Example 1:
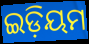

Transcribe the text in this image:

ଇଡ଼ିୟମ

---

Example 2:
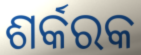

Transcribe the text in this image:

ଶର୍କରକ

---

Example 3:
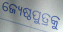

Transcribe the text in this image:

ଜ୍ୟେଷ୍ଠପୁତ୍ରକୁ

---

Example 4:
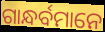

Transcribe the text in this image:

ଗାନ୍ଧର୍ବମାନେ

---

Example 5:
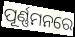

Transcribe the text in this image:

ପୂର୍ଣ୍ଣମନରେ